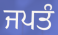
ਜਪਤੰ